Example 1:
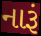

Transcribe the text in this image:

નારૂં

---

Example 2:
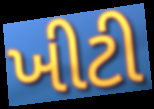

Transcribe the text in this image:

ખીટી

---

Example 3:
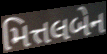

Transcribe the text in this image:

મિત્તલબેન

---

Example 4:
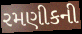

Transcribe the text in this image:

રમણીકની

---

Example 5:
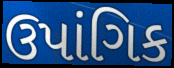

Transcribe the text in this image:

ઉપાંગિક